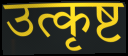
उत्कृष्ट